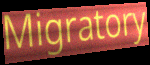
Migratory